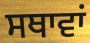
ਸਥਾਵਾਂ